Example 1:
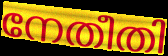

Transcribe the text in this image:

നേതീതി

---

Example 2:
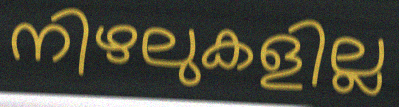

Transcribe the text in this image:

നിഴലുകളില്ല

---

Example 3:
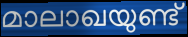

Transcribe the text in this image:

മാലാഖയുണ്ട്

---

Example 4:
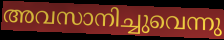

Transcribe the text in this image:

അവസാനിച്ചുവെന്നു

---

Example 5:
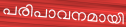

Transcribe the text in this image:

പരിപാവനമായി